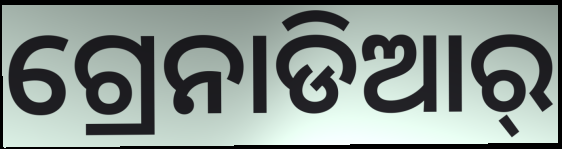
ଗ୍ରେନାଡିଆର୍